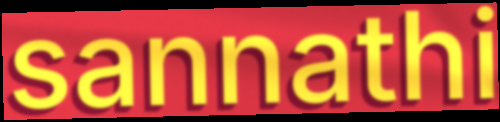
sannathi